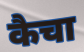
कैचा